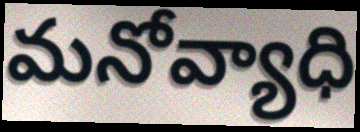
మనోవ్యాధి